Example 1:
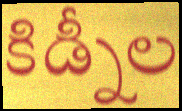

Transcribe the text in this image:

కిడ్నీల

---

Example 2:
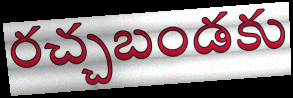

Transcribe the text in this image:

రచ్చబండకు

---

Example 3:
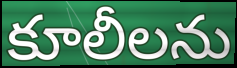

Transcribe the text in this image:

కూలీలను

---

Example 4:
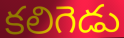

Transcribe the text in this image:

కలిగెడు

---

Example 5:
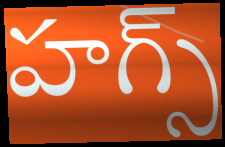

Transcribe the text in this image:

హగ్స్